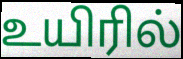
உயிரில்